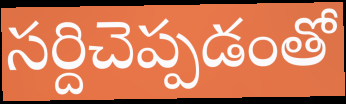
సర్దిచెప్పడంతో